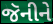
જૅનીને